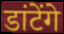
डांटेंगे